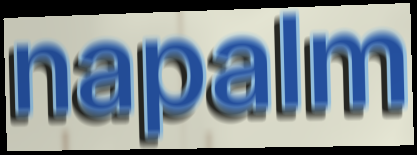
napalm